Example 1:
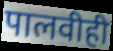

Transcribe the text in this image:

पालवीही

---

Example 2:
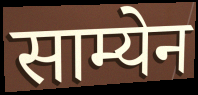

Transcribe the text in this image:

साम्येन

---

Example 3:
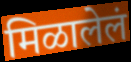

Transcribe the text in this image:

मिळालेलं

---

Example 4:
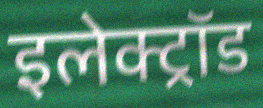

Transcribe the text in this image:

इलेक्ट्रॉड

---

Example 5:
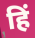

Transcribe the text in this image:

हिं